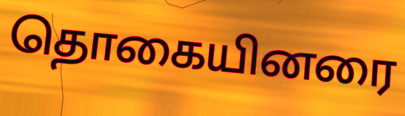
தொகையினரை